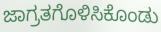
ಜಾಗ್ರತಗೊಳಿಸಿಕೊಂಡು